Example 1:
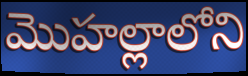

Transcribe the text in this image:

మొహల్లాలోని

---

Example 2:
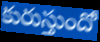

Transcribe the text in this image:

కురుస్తుందో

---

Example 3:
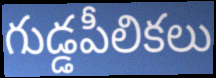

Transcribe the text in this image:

గుడ్డపీలికలు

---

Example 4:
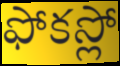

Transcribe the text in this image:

ఫోకస్లో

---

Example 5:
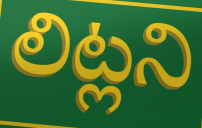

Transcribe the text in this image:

లిట్లని